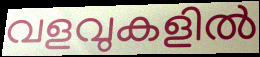
വളവുകളിൽ